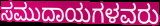
ಸಮುದಾಯಗಳವರು